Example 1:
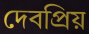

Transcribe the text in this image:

দেবপ্রিয়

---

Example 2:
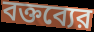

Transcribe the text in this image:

বক্তব্যের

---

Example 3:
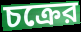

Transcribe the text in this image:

চক্রের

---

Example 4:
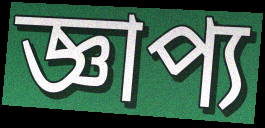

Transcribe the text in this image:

জ্ঞাপ্য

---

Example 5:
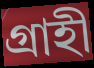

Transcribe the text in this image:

গ্রাহী